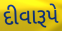
દીવારૂપે